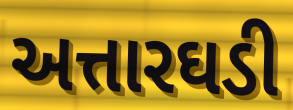
અત્તારઘડી